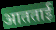
आतताई